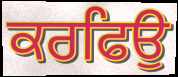
ਕਰਫਿਉ